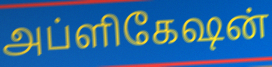
அப்ளிகேஷன்